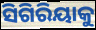
ସିଗିରିୟାକୁ